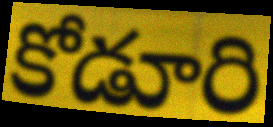
కోడూరి